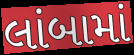
લાંબામાં